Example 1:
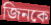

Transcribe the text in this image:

জিনকে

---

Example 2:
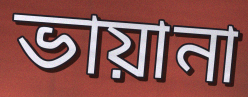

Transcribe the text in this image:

ভায়ানা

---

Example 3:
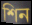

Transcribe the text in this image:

শিন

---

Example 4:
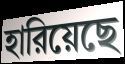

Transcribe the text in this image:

হারিয়েছে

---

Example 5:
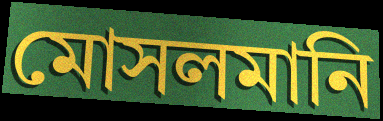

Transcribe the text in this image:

মোসলমানি